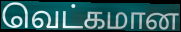
வெட்கமான